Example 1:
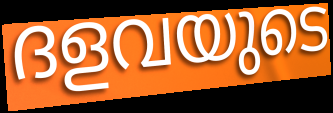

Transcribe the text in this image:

ദളവയുടെ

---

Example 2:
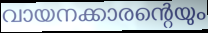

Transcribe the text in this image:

വായനക്കാരന്റെയും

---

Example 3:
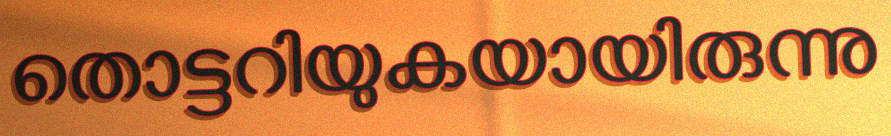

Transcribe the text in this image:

തൊട്ടറിയുകയായിരുന്നു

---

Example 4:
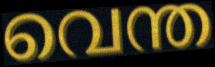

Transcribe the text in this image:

വെന്ത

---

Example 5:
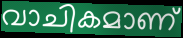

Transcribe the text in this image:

വാചികമാണ്